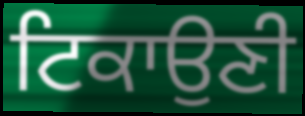
ਟਿਕਾਉਣੀ